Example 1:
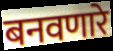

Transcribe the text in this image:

बनवणारे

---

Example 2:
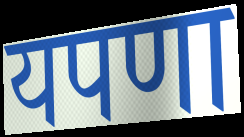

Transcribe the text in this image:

यपणा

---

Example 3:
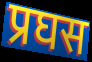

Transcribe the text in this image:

प्रघस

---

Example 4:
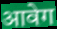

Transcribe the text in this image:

आवेग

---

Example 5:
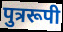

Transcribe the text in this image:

पुत्ररूपी